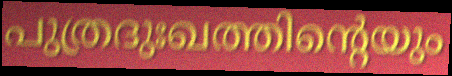
പുത്രദുഃഖത്തിന്റെയും